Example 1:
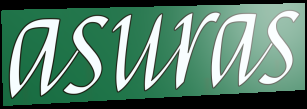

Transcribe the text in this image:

asuras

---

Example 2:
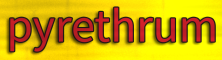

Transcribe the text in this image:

pyrethrum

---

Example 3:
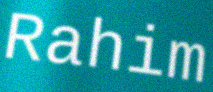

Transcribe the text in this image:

Rahim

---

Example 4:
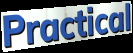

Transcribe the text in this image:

Practical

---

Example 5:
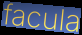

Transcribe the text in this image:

facula